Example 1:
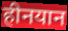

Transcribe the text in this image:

हीनयान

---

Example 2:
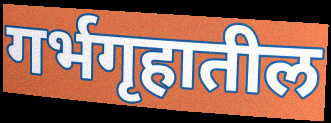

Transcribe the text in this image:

गर्भगृहातील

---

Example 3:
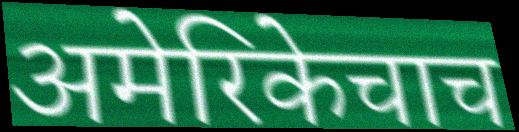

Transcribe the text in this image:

अमेरिकेचाच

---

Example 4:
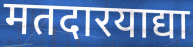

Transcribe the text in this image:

मतदारयाद्या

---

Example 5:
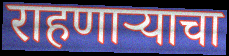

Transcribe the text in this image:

राहणाऱ्याचा